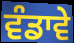
ਵੰਡਾਵੇ